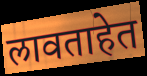
लावताहेत